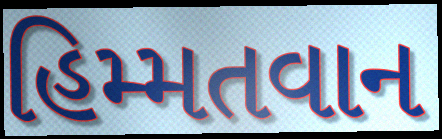
હિમ્મતવાન